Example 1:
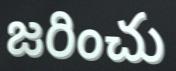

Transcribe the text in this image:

జరించు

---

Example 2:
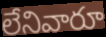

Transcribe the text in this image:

లేనివారూ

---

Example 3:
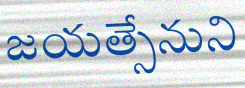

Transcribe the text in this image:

జయత్సేనుని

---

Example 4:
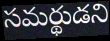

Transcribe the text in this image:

సమర్థుడని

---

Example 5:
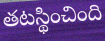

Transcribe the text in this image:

తటస్థించింది